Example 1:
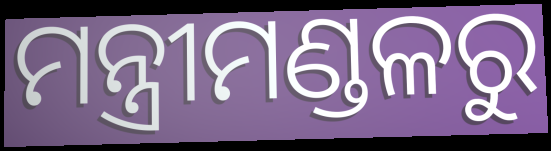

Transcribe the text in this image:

ମନ୍ତ୍ରୀମଣ୍ଡଳରୁ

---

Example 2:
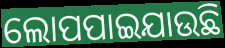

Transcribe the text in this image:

ଲୋପପାଇଯାଉଛି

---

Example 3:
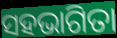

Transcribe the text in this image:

ସହଭାଗିତା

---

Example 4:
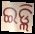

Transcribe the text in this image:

ଇଡ୍ଲି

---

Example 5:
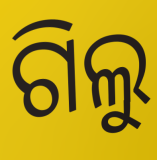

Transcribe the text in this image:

ଗିଲୁ